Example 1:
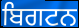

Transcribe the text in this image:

ਬਿਗਟਨ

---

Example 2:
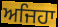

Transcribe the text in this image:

ਅਜਿਹਾ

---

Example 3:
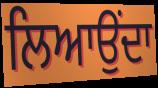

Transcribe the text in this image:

ਲਿਆਉਂਦਾ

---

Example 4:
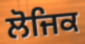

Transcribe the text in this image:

ਲੋਜਿਕ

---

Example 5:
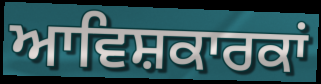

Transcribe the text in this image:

ਆਵਿਸ਼ਕਾਰਕਾਂ